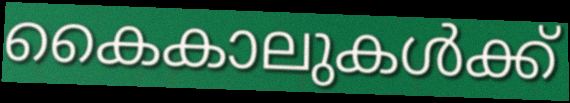
കൈകാലുകൾക്ക്